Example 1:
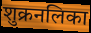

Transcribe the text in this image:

शुक्रनलिका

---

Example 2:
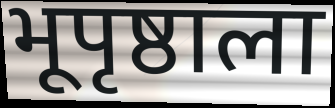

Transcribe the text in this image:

भूपृष्ठाला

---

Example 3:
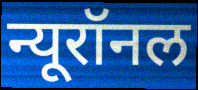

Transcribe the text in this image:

न्यूरॉनल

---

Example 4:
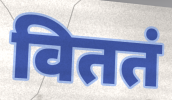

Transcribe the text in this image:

विततं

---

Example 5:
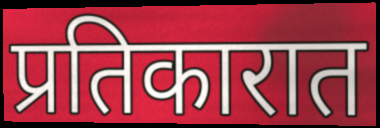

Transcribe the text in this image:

प्रतिकारात